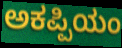
ಅಕಪ್ಪಿಯಂ